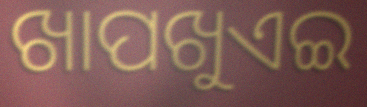
ଖାପଖୁଏଇ